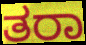
ತರಾ